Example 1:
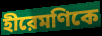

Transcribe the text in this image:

হীরেমণিকে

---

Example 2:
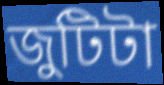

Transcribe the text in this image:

জুটিটা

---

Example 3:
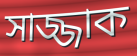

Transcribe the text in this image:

সাজ্জাক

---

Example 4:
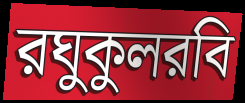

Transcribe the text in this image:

রঘুকুলরবি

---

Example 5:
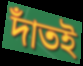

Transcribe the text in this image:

দাঁতই